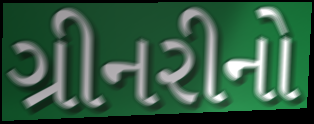
ગ્રીનરીનો